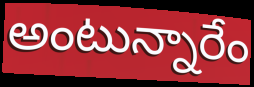
అంటున్నారేం